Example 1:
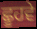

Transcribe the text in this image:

ਛੂਹਵੇ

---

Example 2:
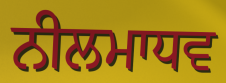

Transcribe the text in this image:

ਨੀਲਮਾਧਵ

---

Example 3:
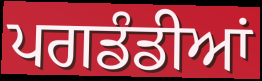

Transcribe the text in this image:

ਪਗਡੰਡੀਆਂ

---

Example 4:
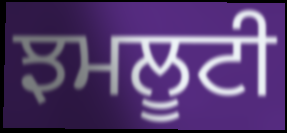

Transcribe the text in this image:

ਝਮਲੂਟੀ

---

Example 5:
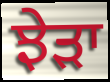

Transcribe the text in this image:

ਝੇੜਾ